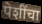
पेशींचा